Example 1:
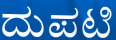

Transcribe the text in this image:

ದುಪಟಿ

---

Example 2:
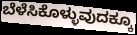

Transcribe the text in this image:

ಬೆಳೆಸಿಕೊಳ್ಳುವುದಕ್ಕೂ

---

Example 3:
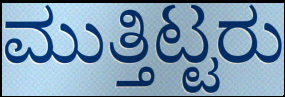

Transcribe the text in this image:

ಮುತ್ತಿಟ್ಟರು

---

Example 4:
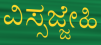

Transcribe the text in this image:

ವಿಸ್ಸಜ್ಜೇಹಿ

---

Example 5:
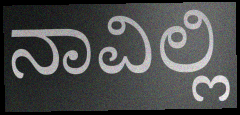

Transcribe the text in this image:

ನಾವಿಲ್ಲಿ